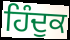
ਹਿੰਦੁਕ